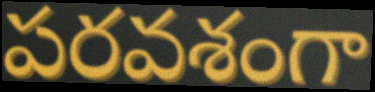
పరవశంగా